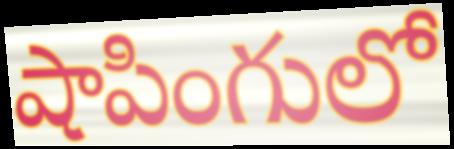
షాపింగులో